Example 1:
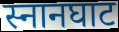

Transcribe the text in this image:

स्नानघाट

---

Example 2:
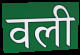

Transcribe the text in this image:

वली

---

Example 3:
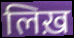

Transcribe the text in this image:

लिख़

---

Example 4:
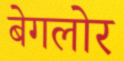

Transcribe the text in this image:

बेगलोर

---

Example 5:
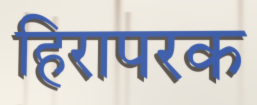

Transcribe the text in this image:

हिरापरक